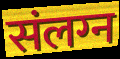
संलग्‍न